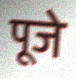
पूजे